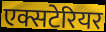
एक्सटेरियर